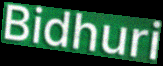
Bidhuri